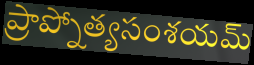
ప్రాప్నోత్యసంశయమ్